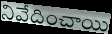
నివేదించాయి